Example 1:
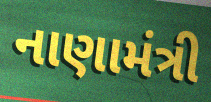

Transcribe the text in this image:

નાણામંત્રી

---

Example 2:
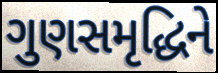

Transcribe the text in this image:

ગુણસમૃદ્ધિને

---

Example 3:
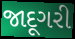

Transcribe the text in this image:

જાદૂગરી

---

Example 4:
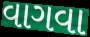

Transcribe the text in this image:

વાગવા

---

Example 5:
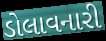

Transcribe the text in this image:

ડોલાવનારી